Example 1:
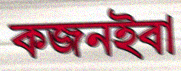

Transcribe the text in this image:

কজনইবা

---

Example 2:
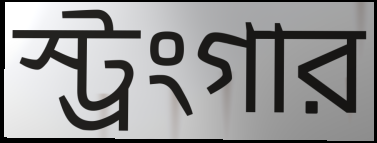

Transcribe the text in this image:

স্ট্রংগার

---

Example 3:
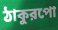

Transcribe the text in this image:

ঠাকুরপো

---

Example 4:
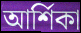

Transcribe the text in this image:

আর্শিকা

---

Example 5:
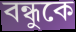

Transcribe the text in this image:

বন্ধুকে